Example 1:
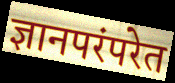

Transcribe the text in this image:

ज्ञानपरंपरेत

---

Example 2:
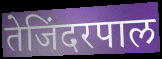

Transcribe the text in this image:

तेजिंदरपाल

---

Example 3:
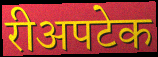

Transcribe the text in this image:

रीअपटेक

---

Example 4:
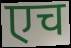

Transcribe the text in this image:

एच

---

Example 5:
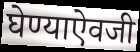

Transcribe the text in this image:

घेण्याऐवजी